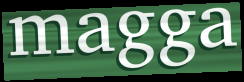
magga